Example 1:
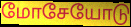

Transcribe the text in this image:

மோசேயோடு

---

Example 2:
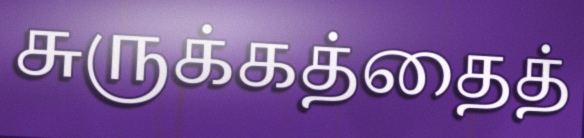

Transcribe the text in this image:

சுருக்கத்தைத்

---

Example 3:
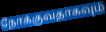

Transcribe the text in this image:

நோக்குவதாகவும்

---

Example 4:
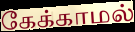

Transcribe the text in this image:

கேக்காமல்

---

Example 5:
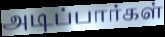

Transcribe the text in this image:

அடிப்பார்கள்